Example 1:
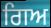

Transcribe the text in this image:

ਗਿਅ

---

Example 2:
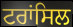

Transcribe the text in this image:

ਟਰਾਂਸਿਲ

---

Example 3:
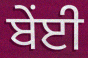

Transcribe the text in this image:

ਬੇਂਈ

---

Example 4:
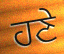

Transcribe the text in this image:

ਹਣੇ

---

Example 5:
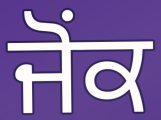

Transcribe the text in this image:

ਜੋਂਕ